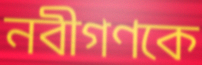
নবীগণকে